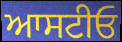
ਆਸਟੀਓ